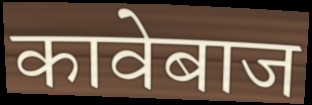
कावेबाज